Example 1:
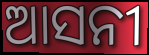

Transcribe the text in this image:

ଆସନୀ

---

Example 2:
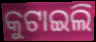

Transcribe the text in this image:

କୁଟାଇଲି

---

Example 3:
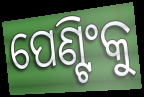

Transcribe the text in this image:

ପେଣ୍ଟିଂକୁ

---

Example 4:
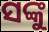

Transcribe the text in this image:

ସଙ୍କୁ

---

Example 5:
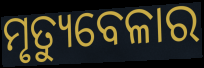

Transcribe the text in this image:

ମୃତ୍ୟୁବେଳାର